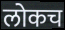
लोकच